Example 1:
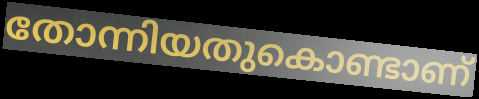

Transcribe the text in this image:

തോന്നിയതുകൊണ്ടാണ്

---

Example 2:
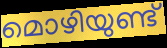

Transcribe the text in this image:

മൊഴിയുണ്ട്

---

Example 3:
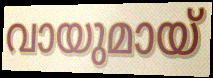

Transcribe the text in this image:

വായുമായ്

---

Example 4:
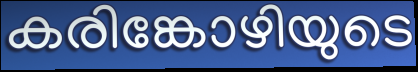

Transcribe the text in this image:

കരിങ്കോഴിയുടെ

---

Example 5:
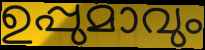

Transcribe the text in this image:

ഉപ്പുമാവും